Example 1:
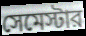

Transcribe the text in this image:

সেমেস্টার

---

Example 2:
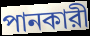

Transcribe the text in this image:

পানকারী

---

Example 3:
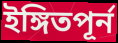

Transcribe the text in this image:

ইঙ্গিতপূর্ন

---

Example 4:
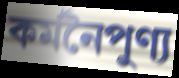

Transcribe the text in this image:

কর্মনৈপুণ্য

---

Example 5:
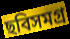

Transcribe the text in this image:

ছবিসমগ্র